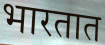
भारतात